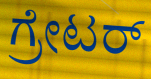
ಗ್ರೇಟರ್